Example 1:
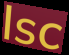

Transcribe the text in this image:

Isc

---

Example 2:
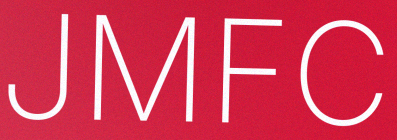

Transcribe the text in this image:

JMFC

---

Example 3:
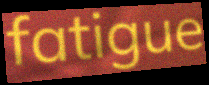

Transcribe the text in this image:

fatigue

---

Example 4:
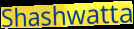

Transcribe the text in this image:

Shashwatta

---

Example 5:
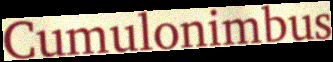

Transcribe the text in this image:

Cumulonimbus